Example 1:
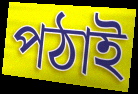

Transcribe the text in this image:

পঠাই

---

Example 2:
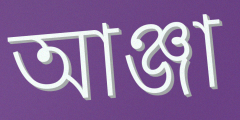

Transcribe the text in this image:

আঞ্জা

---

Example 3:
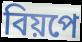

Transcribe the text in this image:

বিয়পে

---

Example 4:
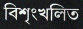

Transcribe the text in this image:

বিশৃংখলিত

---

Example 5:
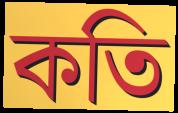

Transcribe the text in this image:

কতি